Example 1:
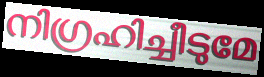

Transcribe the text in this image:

നിഗ്രഹിച്ചീടുമേ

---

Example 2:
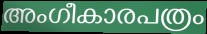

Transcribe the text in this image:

അംഗീകാരപത്രം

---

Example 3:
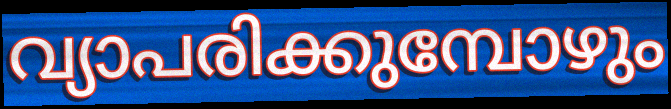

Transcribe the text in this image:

വ്യാപരിക്കുമ്പോഴും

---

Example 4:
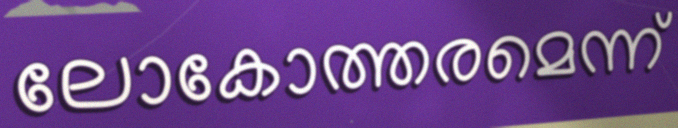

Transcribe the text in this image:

ലോകോത്തരമെന്ന്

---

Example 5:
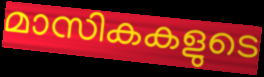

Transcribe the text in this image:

മാസികകളുടെ